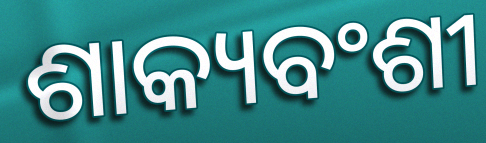
ଶାକ୍ୟବଂଶୀ